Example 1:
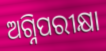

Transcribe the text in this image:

ଅଗ୍ନିପରୀକ୍ଷା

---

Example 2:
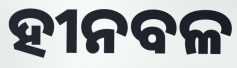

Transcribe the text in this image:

ହୀନବଳ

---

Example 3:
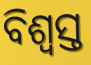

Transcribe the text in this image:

ବିଶ୍ବସ୍ତ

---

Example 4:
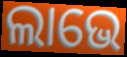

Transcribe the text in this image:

ଲାଭେ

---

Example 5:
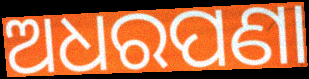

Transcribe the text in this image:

ଅଧରପଣା